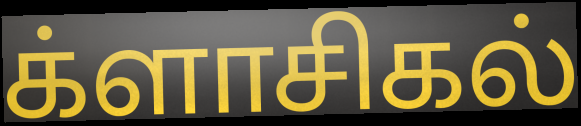
க்ளாசிகல்